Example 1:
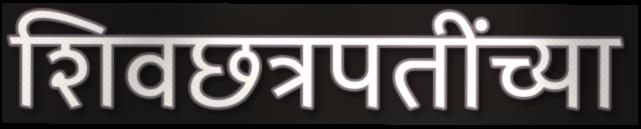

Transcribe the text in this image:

शिवछत्रपतींच्या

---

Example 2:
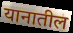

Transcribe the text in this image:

यानातील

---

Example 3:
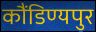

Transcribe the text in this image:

कौंडिण्यपुर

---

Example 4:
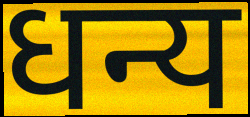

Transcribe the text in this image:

धन्य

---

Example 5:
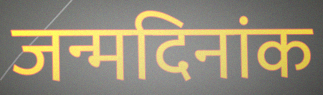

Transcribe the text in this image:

जन्मदिनांक